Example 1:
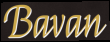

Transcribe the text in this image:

Bavan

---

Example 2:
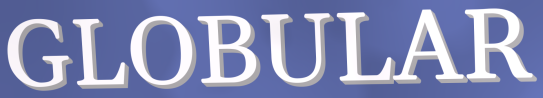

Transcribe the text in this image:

GLOBULAR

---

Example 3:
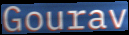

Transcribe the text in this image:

Gourav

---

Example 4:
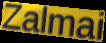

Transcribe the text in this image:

Zalmai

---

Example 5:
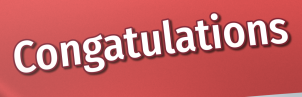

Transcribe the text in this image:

Congatulations